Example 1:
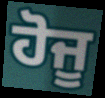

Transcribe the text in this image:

ਹੋਜੂ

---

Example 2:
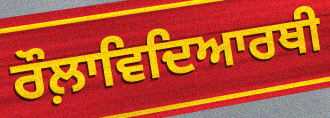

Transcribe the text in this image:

ਰੌਲ਼ਾਵਿਦਿਆਰਥੀ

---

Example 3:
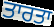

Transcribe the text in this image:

ਤਾਰਤਾ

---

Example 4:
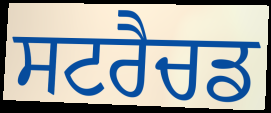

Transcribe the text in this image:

ਸਟਰੈਚਡ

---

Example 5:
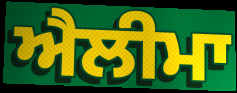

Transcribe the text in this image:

ਐਲੀਮਾ